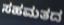
ಸಹಮತದ